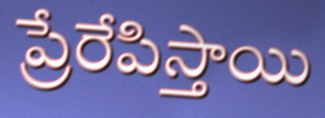
ప్రేరేపిస్తాయి